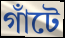
গাঁটে